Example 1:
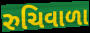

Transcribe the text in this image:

રુચિવાળા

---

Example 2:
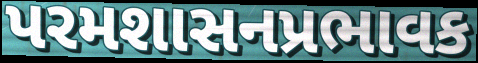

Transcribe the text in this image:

પરમશાસનપ્રભાવક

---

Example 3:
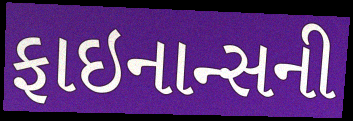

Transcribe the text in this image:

ફાઇનાન્સની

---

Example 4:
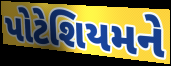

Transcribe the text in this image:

પોટેશિયમને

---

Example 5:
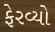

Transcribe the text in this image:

ફેરવ્યો